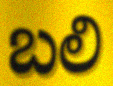
బలి